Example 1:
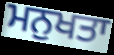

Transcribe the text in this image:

ਮਨੁਖਤਾ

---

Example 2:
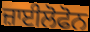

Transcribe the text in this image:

ਜ਼ਾਈਲੋਫੋਨ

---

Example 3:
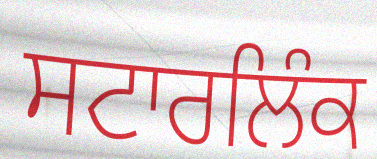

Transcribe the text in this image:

ਸਟਾਰਲਿੰਕ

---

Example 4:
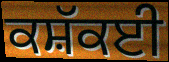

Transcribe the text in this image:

ਕਸ਼ੱਕਈ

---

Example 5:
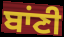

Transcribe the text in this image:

ਬਾਂਣੀ